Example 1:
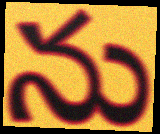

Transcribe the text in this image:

ను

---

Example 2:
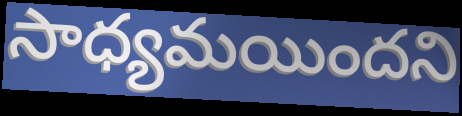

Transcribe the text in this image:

సాధ్యమయిందని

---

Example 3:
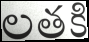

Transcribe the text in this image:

లతకి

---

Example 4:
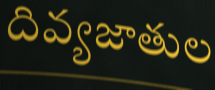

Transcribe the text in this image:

దివ్యజాతుల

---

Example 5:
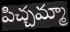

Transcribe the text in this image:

పిచ్చమ్మా